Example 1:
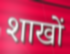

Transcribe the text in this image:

शाखों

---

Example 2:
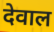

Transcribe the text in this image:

देवाल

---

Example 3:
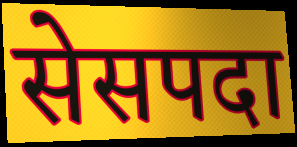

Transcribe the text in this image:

सेसपदा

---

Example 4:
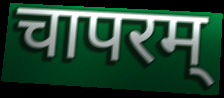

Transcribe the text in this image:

चापरम्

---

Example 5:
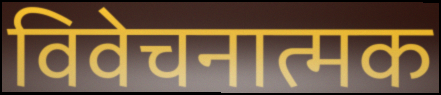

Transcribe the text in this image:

विवेचनात्‍मक